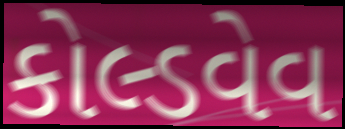
કોલ્ડવેવ